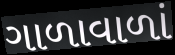
ગાળાવાળાં